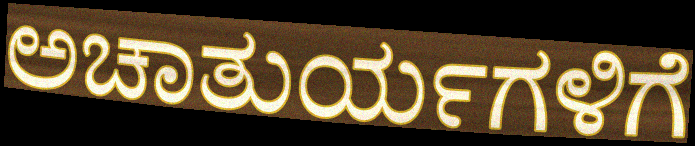
ಅಚಾತುರ್ಯಗಳಿಗೆ